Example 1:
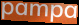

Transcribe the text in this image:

pampa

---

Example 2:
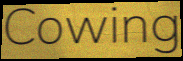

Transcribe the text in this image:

Cowing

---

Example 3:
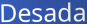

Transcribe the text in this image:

Desada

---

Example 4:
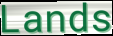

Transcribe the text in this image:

Lands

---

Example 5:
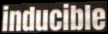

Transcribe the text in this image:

inducible